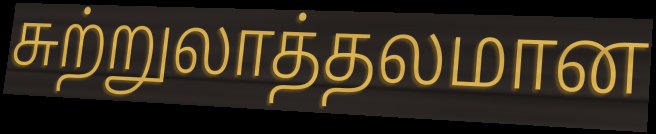
சுற்றுலாத்தலமான